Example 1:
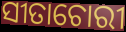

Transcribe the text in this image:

ସୀତାଚୋରୀ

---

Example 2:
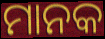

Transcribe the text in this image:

ମାନକ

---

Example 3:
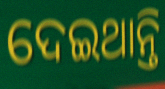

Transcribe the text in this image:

ଦେଇଥାନ୍ତି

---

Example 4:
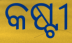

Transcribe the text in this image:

କଷ୍ଟୀ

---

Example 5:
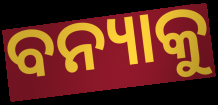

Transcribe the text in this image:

ବନ୍ୟାକୁ